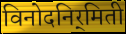
विनोदनिर्मिती